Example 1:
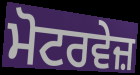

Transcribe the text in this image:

ਮੋਟਰਵੇਜ਼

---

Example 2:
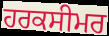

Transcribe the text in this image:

ਹਰਕਸੀਮਰ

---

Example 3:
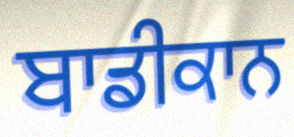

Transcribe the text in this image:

ਬਾਡੀਕਾਨ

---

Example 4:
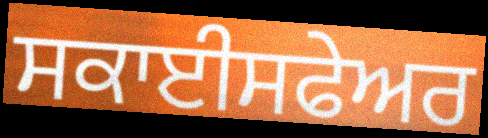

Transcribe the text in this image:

ਸਕਾਈਸਫੇਅਰ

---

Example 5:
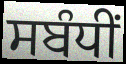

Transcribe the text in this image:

ਸਬੰਧੀਂ